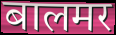
बालमर